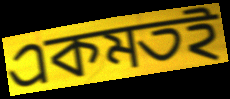
একমতই